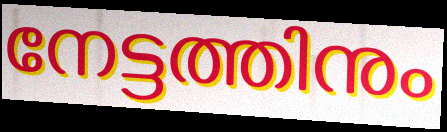
നേട്ടത്തിനും